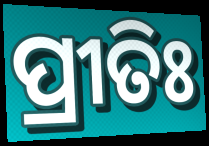
ପ୍ରୀତିଃ